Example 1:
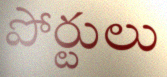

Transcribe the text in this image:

పోర్టులు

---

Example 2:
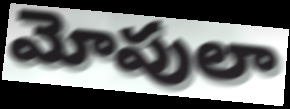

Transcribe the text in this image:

మోపులా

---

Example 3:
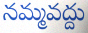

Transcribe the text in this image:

నమ్మవద్దు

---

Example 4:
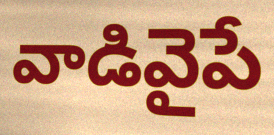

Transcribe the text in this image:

వాడివైపే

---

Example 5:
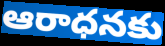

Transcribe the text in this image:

ఆరాధనకు